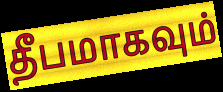
தீபமாகவும்